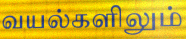
வயல்களிலும்